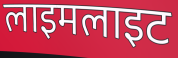
लाइमलाइट